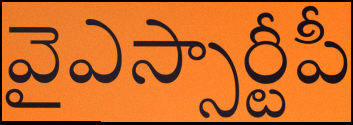
వైఎస్సార్టీపీ